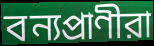
বন্যপ্রাণীরা